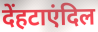
देंहटाएंदिल